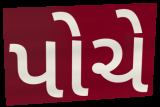
પોચે